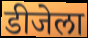
डीजेला